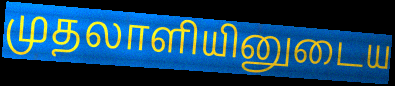
முதலாளியினுடைய